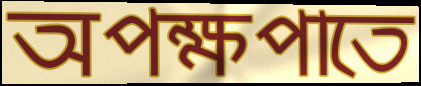
অপক্ষপাতে